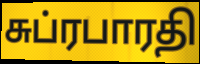
சுப்ரபாரதி